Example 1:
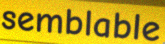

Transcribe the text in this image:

semblable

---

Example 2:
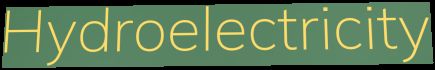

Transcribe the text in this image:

Hydroelectricity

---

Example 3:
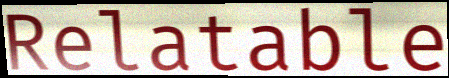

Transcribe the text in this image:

Relatable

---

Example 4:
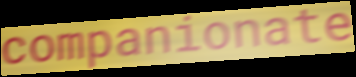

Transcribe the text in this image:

companionate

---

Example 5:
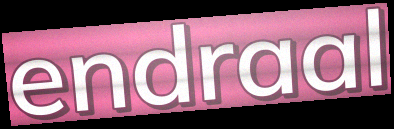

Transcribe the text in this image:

endraal